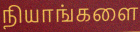
நியாங்களை